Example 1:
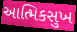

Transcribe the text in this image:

આત્મિકસુખ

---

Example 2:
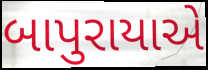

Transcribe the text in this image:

બાપુરાયાએ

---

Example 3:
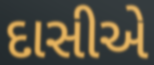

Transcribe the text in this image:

દાસીએ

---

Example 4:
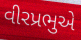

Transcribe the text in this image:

વીરપ્રભુએ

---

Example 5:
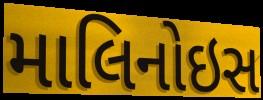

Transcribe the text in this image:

માલિનોઇસ